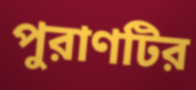
পুরাণটির